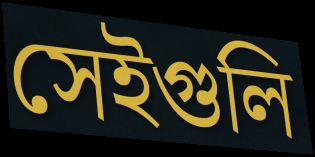
সেইগুলি